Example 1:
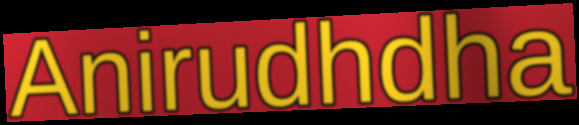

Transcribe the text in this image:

Anirudhdha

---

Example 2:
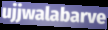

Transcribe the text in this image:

ujjwalabarve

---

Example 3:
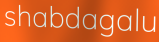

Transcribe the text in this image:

shabdagalu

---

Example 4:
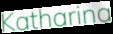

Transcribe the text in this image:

Katharina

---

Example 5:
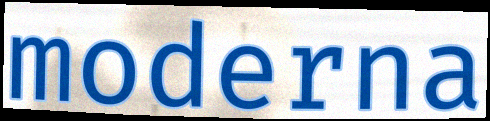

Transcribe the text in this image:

moderna